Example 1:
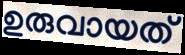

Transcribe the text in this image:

ഉരുവായത്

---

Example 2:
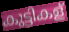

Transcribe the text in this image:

കുട്ടികള്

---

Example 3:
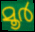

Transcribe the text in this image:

മൂർ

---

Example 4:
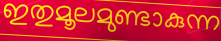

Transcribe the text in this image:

ഇതുമൂലമുണ്ടാകുന്ന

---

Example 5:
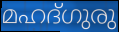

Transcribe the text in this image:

മഹദ്ഗുരു